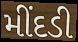
મીંદડી